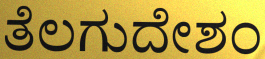
ತೆಲಗುದೇಶಂ